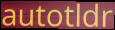
autotldr